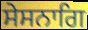
ਸੇਸਨਾਗਿ